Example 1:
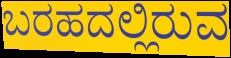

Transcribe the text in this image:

ಬರಹದಲ್ಲಿರುವ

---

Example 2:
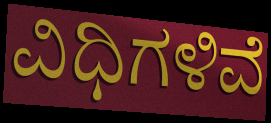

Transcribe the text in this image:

ವಿಧಿಗಳಿವೆ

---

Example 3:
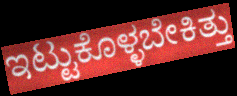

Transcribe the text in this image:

ಇಟ್ಟುಕೊಳ್ಳಬೇಕಿತ್ತು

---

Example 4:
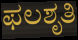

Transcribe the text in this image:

ಫಲಶೃತಿ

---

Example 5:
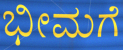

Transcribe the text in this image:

ಭೀಮಗೆ